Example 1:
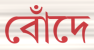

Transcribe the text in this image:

বোঁদে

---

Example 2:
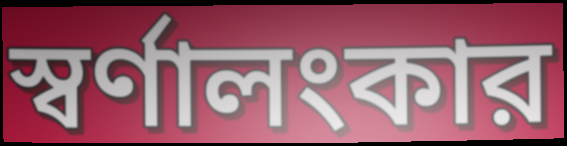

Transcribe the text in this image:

স্বর্ণালংকার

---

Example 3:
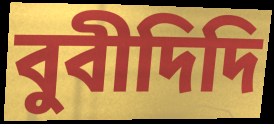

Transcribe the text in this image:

বুবীদিদি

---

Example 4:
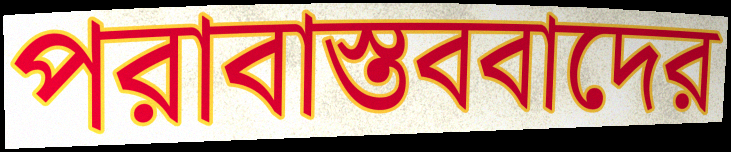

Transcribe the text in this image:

পরাবাস্তববাদের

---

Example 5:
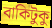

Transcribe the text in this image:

বাকিটুকু